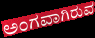
ಅಂಗವಾಗಿರುವ